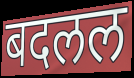
बदलल